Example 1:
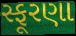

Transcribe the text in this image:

સ્ફૂરણા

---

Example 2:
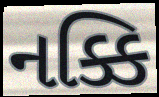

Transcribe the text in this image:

નક્કિ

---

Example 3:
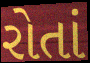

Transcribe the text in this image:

રોતાં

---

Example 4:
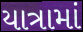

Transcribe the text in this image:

યાત્રામાં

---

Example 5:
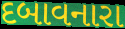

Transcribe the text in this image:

દબાવનારા